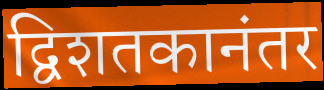
द्विशतकानंतर